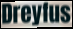
Dreyfus